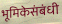
भूमिकेसंबंधी